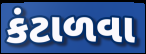
કંટાળવા